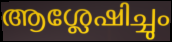
ആശ്ലേഷിച്ചും